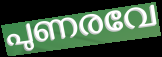
പുണരവേ